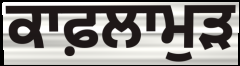
ਕਾਫ਼ਲਾਮੁੜ